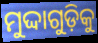
ମୁଦ୍ଦାଗୁଡ଼ିକୁ